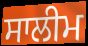
ਸਾਲੀਮ